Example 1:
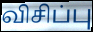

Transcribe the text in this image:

விசிப்பு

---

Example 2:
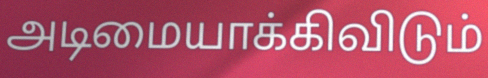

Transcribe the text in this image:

அடிமையாக்கிவிடும்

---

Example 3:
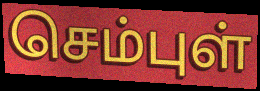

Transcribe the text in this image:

செம்புள்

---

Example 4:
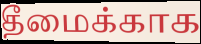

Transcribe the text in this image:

தீமைக்காக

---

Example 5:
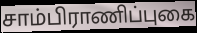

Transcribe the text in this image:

சாம்பிராணிப்புகை